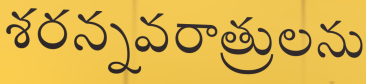
శరన్నవరాత్రులను